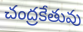
చంద్రకేతువు